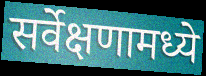
सर्वेक्षणामध्ये